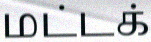
மட்டக்